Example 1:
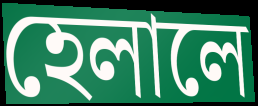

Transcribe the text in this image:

হেলালে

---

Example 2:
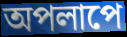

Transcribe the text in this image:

অপলাপে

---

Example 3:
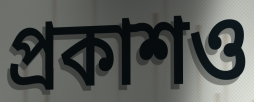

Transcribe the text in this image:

প্রকাশও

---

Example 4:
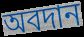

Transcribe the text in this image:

অবদান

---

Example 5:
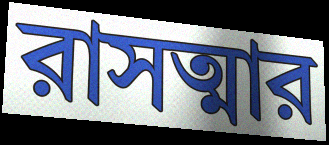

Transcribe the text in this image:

রাসত্মার